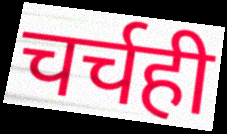
चर्चही